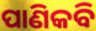
ପାଣିକବି